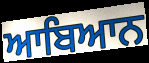
ਆਬਿਆਨ